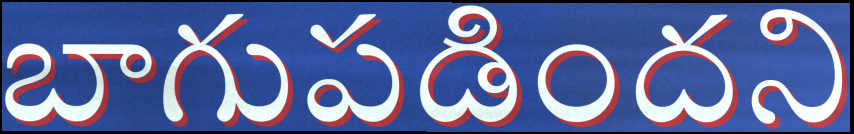
బాగుపడిందని